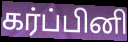
கர்ப்பினி